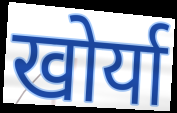
खोर्या